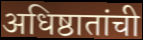
अधिष्ठातांची